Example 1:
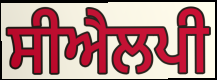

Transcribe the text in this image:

ਸੀਐਲਪੀ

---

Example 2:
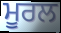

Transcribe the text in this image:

ਮੂਰਲ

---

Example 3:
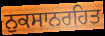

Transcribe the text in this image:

ਨੁਕਸਾਨਰਹਿਤ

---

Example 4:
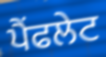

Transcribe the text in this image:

ਪੈਂਫਲੇਟ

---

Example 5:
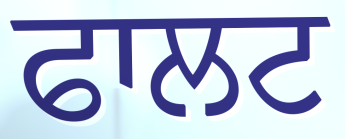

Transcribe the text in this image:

ਫਾਲਟ